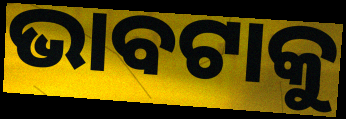
ଭାବଟାକୁ